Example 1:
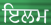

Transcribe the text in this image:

ਇਲਮ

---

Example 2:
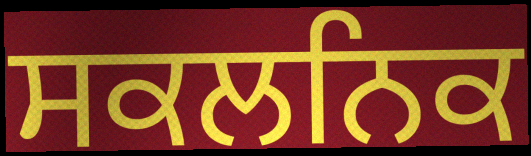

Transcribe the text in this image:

ਸਕਲਨਿਕ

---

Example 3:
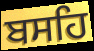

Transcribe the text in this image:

ਬਸਹਿ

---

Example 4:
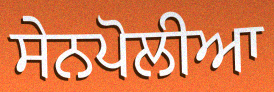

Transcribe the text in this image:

ਸੇਨਪੋਲੀਆ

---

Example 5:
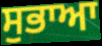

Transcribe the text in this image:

ਸੁਭਾਆ